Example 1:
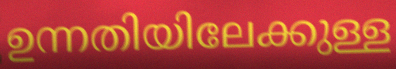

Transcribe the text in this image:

ഉന്നതിയിലേക്കുള്ള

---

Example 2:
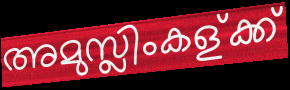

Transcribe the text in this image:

അമുസ്ലിംകള്ക്ക്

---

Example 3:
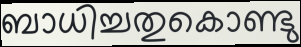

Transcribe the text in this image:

ബാധിച്ചതുകൊണ്ടു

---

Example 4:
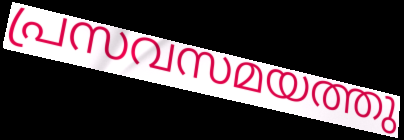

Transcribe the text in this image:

പ്രസവസമയത്തു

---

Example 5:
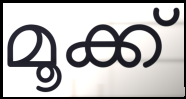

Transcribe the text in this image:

മൂക്ക്